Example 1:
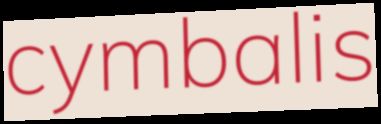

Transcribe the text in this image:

cymbalis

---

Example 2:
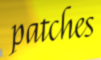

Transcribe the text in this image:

patches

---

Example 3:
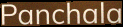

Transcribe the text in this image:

Panchala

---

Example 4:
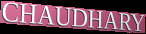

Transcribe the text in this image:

CHAUDHARY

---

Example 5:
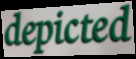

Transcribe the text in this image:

depicted